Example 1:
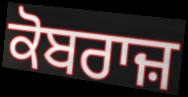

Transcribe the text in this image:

ਕੋਬਰਾਜ਼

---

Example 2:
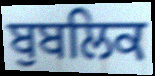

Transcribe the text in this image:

ਬੁਬਲਿਕ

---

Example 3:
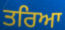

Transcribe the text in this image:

ਤਰਿਆ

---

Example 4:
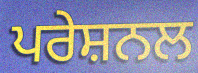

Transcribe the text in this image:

ਪਰੇਸ਼ਨਲ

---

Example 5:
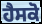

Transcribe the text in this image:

ਹੈਸਕੋ